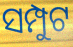
ସମ୍ପୁଟ